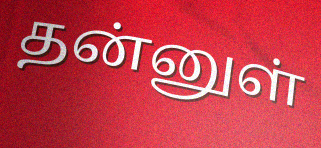
தன்னுள்